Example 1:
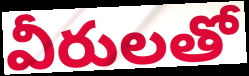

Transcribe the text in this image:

వీరులతో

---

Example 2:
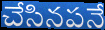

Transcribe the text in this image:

చేసినపనే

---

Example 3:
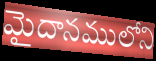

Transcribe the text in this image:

మైదానములోని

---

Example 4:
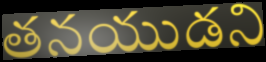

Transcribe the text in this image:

తనయుడని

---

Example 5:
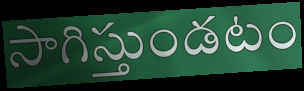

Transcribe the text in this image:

సాగిస్తుండటం